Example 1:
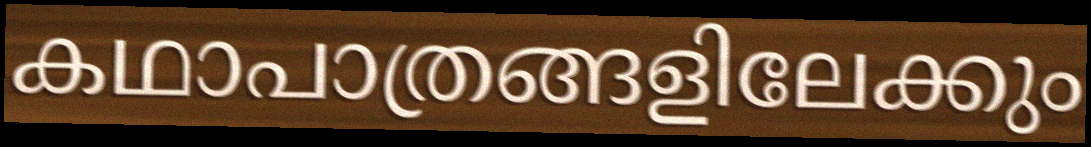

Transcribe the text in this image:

കഥാപാത്രങ്ങളിലേക്കും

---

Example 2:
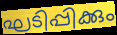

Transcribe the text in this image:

ഘടിപ്പിക്കും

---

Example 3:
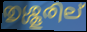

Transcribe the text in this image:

തൃശ്ശൂരില്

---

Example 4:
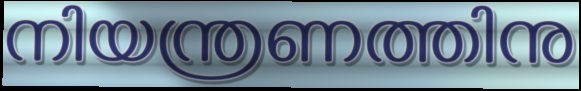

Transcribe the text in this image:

നിയന്ത്രണത്തിനു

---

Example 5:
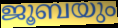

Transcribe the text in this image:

ജൂബയും